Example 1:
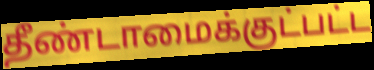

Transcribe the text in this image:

தீண்டாமைக்குட்பட்ட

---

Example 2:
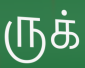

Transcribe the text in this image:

ருக்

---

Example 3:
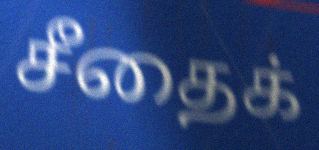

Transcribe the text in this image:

சீதைக்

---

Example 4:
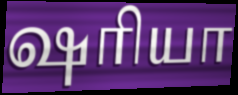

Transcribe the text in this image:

ஷரியா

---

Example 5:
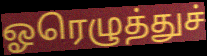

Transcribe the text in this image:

ஓரெழுத்துச்